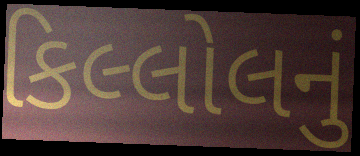
કિલ્લોલનું